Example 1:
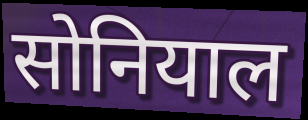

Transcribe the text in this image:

सोनियाल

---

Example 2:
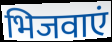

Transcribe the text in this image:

भिजवाएं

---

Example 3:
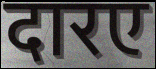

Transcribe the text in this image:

दारए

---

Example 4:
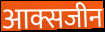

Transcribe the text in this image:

आक्सजीन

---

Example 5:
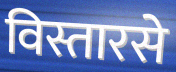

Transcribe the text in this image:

विस्तारसे